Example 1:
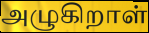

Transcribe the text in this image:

அழுகிறாள்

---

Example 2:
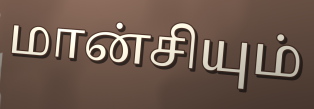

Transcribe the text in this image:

மான்சியும்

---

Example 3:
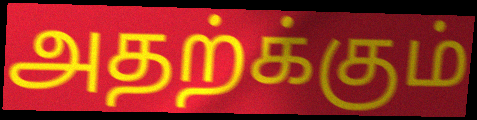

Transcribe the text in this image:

அதற்க்கும்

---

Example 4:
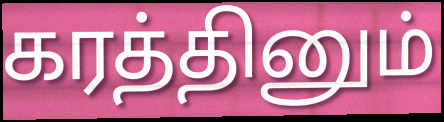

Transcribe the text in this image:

கரத்தினும்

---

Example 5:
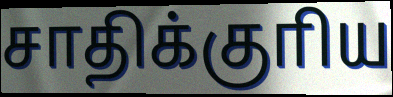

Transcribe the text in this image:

சாதிக்குரிய